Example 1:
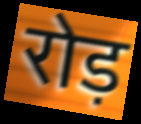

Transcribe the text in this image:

रोड़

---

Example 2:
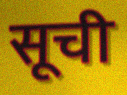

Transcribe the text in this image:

सूची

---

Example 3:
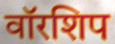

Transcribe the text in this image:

वॉरशिप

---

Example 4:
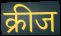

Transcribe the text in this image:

क्रीज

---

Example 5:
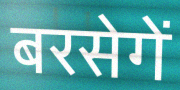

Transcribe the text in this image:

बरसेगें